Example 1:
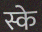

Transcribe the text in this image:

स्के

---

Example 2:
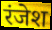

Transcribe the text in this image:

रंजेश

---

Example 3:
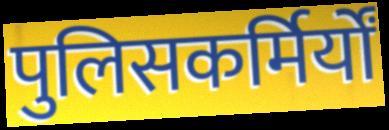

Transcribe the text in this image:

पुलिसकर्मिर्यों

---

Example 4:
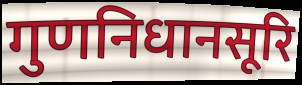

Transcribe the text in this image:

गुणनिधानसूरि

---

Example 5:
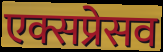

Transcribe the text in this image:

एक्सप्रेसव